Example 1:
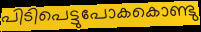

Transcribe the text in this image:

പിടിപെട്ടുപോകകൊണ്ടു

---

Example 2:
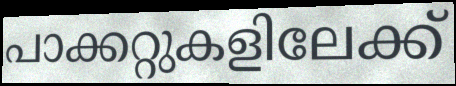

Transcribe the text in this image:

പാക്കറ്റുകളിലേക്ക്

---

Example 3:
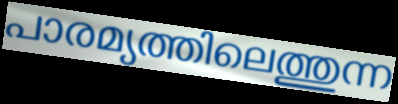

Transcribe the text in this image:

പാരമ്യത്തിലെത്തുന്ന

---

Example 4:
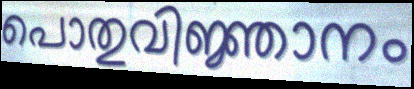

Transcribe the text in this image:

പൊതുവിജ്ഞാനം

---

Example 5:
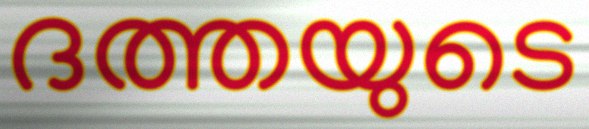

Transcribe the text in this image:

ദത്തയുടെ